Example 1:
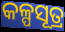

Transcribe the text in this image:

କଳ୍ପସୂତ୍ର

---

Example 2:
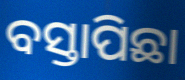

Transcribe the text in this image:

ବସ୍ତାପିଛା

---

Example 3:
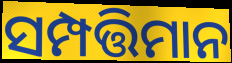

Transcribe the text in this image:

ସମ୍ପତ୍ତିମାନ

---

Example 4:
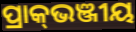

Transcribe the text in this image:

ପ୍ରାକ୍‌ଭଞ୍ଜୀୟ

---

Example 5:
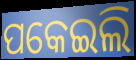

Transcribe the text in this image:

ପକେଇଲି